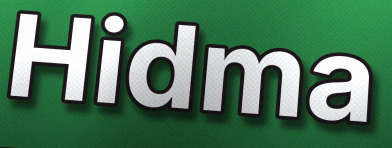
Hidma